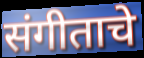
संगीताचे